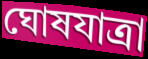
ঘোষযাত্রা